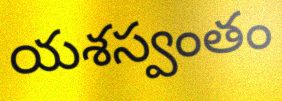
యశస్వంతం